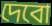
দেবো